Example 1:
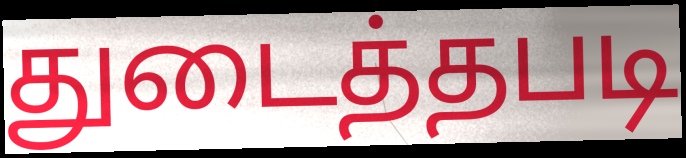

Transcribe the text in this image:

துடைத்தபடி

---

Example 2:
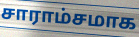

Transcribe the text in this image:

சாராம்சமாக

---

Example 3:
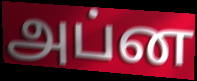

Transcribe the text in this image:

அப்ன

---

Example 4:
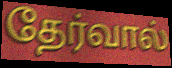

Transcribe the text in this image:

தேர்வால்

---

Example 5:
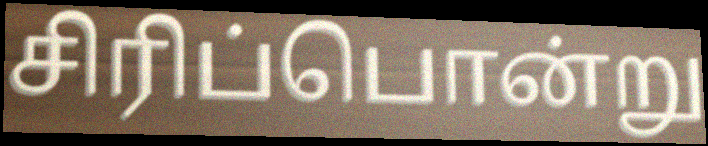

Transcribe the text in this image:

சிரிப்பொன்று